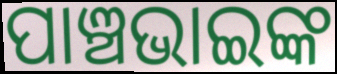
ପାଞ୍ଚଭାଇଙ୍କ